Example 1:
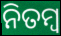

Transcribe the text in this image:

ନିତମ୍ବ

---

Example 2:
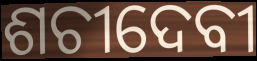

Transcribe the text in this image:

ଶଚୀଦେବୀ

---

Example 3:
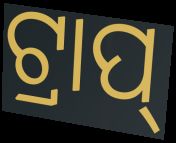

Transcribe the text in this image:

ଟ୍ରାପ୍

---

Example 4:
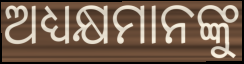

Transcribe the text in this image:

ଅଧ୍ୟକ୍ଷମାନଙ୍କୁ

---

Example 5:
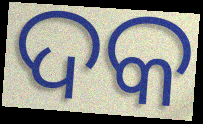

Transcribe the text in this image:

ଦକ